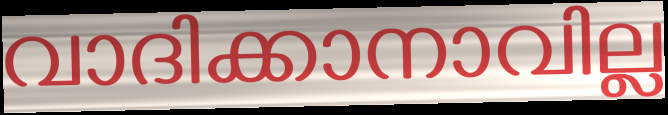
വാദിക്കാനാവില്ല